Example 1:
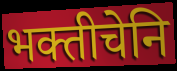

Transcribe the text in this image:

भक्तीचेनि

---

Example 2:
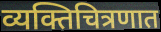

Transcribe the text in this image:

व्यक्तिचित्रणात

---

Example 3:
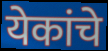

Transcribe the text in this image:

येकांचे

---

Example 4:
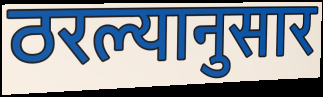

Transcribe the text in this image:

ठरल्यानुसार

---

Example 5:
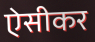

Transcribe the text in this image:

ऐसीकर